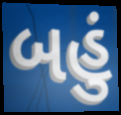
બહું